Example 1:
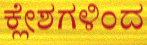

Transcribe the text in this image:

ಕ್ಲೇಶಗಳಿಂದ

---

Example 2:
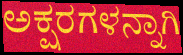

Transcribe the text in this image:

ಅಕ್ಷರಗಳನ್ನಾಗಿ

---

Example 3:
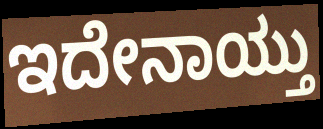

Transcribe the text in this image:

ಇದೇನಾಯ್ತು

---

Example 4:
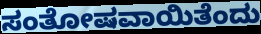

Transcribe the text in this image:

ಸಂತೋಷವಾಯಿತೆಂದು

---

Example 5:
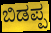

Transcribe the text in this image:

ಬಿಡಪ್ಪ